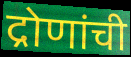
द्रोणांची